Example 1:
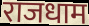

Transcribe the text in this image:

राजधाम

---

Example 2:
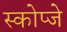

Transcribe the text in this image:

स्कोप्जे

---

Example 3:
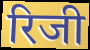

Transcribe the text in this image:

रिजी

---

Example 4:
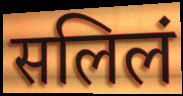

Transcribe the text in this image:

सलिलं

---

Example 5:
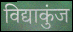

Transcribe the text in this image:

विद्याकुंज